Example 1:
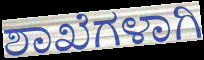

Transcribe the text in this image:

ಶಾಖೆಗಳಾಗಿ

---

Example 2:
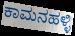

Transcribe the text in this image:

ಕಾಮನಹಳ್ಳಿ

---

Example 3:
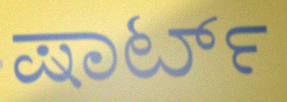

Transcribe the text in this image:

ಷಾರ್ಟ್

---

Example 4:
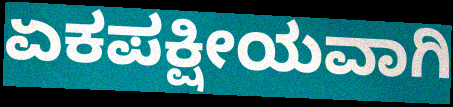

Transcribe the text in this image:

ಏಕಪಕ್ಷೀಯವಾಗಿ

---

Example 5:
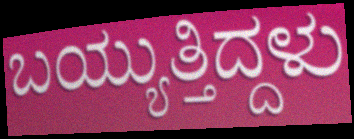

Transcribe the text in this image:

ಬಯ್ಯುತ್ತಿದ್ದಳು